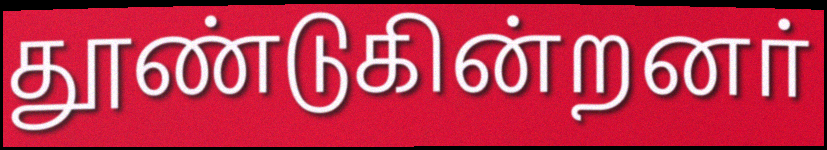
தூண்டுகின்றனர்